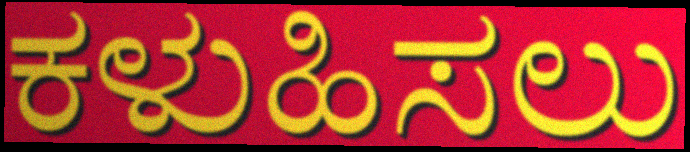
ಕಳುಹಿಸಲು